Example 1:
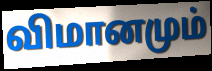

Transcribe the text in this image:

விமானமும்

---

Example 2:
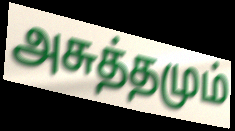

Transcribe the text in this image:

அசுத்தமும்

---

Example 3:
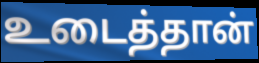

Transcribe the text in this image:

உடைத்தான்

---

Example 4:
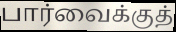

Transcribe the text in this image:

பார்வைக்குத்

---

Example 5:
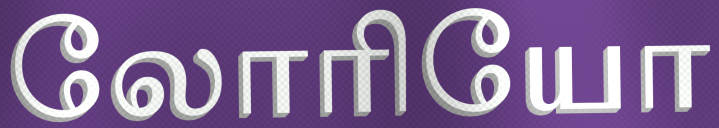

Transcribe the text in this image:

லோரியோ